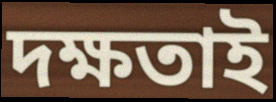
দক্ষতাই